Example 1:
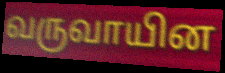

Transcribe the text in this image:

வருவாயின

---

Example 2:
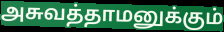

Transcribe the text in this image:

அசுவத்தாமனுக்கும்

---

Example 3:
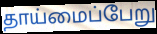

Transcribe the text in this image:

தாய்மைப்பேறு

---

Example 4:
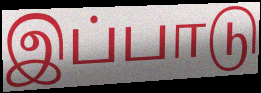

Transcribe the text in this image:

இப்பாடு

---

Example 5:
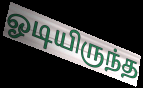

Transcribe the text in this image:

ஓடியிருந்த